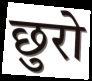
छुरो